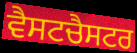
ਵੈਸਟਚੈਸਟਰ